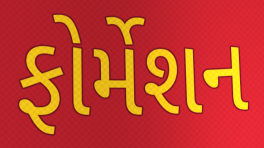
ફોર્મેશન